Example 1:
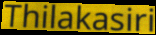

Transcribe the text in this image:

Thilakasiri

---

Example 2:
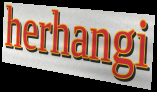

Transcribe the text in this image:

herhangi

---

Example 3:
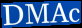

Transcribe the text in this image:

DMAc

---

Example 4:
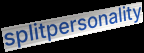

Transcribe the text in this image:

splitpersonality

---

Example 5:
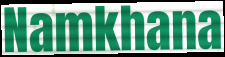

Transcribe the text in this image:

Namkhana